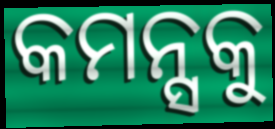
କମନ୍ସକୁ